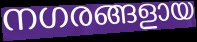
നഗരങ്ങളായ